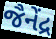
જૈનેંદ્ર